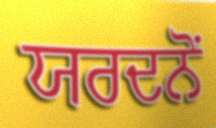
ਯਰਦਨੋਂ